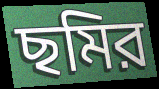
ছমির